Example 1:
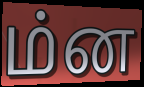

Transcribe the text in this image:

ம்ன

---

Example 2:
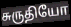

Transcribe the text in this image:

சுருதியோ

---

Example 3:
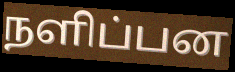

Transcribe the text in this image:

நளிப்பன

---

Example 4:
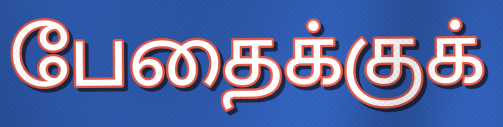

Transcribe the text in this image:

பேதைக்குக்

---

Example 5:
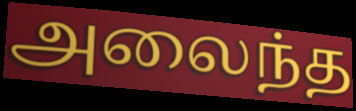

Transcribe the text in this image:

அலைந்த